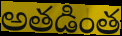
అతడింత